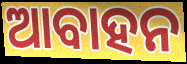
ଆବାହନ